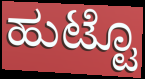
ಹುಟ್ಟೊ